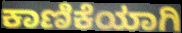
ಕಾಣಿಕೆಯಾಗಿ